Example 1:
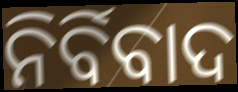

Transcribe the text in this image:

ନିର୍ବିବାଦ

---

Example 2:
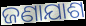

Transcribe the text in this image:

ଜଣାଯାଶ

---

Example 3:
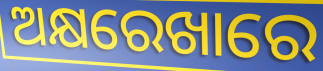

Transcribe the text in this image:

ଅକ୍ଷରେଖାରେ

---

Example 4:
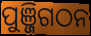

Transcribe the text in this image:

ପୁଞ୍ଜିଗଠନ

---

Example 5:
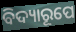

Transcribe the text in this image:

ବିଦ୍ୟାରୂପେ